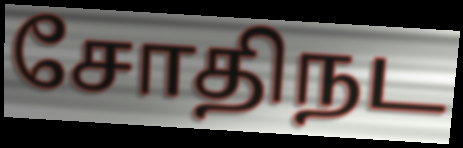
சோதிநட